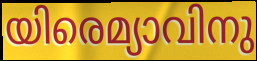
യിരെമ്യാവിനു